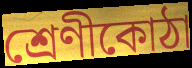
শ্ৰেণীকোঠা